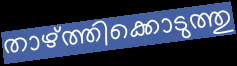
താഴ്ത്തിക്കൊടുത്തു